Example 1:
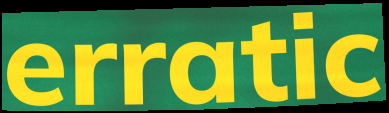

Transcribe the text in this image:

erratic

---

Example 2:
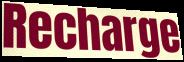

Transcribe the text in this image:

Recharge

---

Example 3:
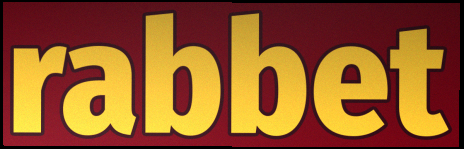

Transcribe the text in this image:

rabbet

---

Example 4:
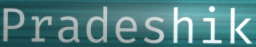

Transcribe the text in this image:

Pradeshik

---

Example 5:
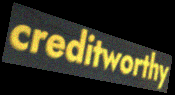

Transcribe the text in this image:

creditworthy